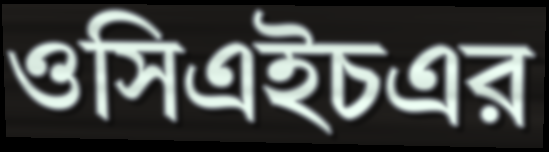
ওসিএইচএর